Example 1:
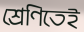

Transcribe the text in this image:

শ্রেণিতেই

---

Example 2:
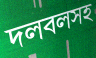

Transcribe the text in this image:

দলবলসহ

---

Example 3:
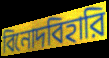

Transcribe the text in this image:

বিনোদবিহারি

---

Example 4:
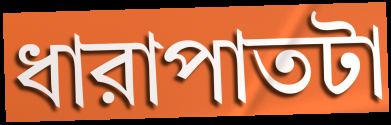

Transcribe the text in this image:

ধারাপাতটা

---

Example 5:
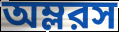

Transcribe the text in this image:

অম্লরস